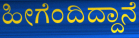
ಹೀಗೆಂದಿದ್ದಾನೆ